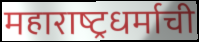
महाराष्ट्रधर्माची